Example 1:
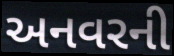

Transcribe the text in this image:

અનવરની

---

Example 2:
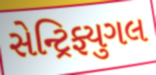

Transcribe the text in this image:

સેન્ટ્રિફ્યુગલ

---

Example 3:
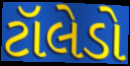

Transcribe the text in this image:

ટૉલેડો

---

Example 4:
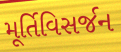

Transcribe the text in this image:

મૂર્તિવિસર્જન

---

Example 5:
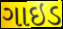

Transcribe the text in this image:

ગાઇડ